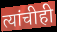
त्यांचीही